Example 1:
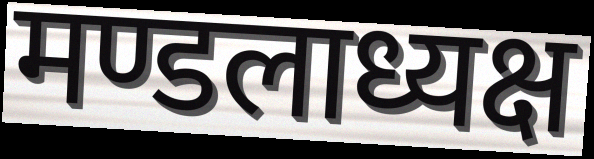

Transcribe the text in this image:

मण्डलाध्यक्ष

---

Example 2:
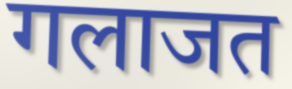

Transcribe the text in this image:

गलाजत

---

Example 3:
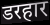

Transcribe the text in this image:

डरहार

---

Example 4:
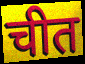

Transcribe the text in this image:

चीत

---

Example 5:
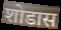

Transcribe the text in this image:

शोडास